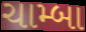
ચામ્બા